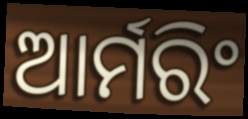
ଆର୍ମରିଂ